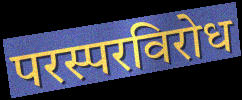
परस्परविरोध